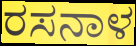
ರಸನಾಳ